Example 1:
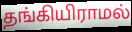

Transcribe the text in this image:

தங்கியிராமல்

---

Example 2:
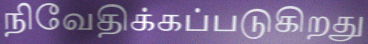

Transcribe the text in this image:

நிவேதிக்கப்படுகிறது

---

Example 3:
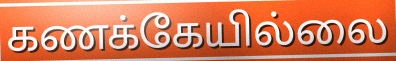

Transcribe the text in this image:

கணக்கேயில்லை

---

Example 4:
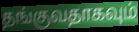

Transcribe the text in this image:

தங்குவதாகவும்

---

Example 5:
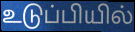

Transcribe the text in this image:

உடுப்பியில்